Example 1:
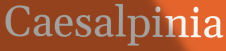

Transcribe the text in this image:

Caesalpinia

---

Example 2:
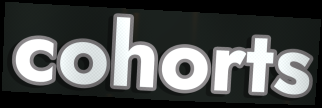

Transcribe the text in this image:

cohorts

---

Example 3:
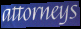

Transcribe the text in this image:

attorneys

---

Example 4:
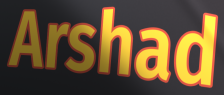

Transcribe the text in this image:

Arshad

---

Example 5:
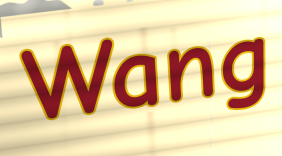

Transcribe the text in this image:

Wang